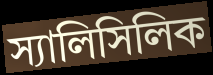
স্যালিসিলিক